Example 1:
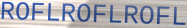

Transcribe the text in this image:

ROFLROFLROFL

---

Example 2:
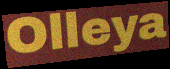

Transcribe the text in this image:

Olleya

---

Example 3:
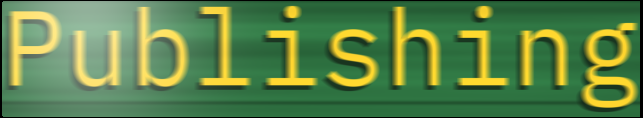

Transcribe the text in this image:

Publishing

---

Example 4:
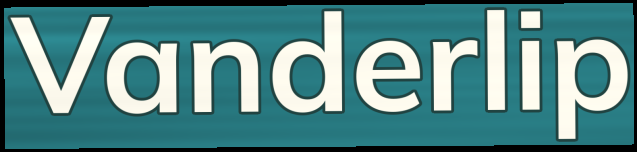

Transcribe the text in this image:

Vanderlip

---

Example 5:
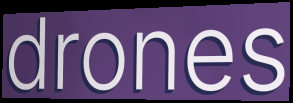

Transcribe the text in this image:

drones